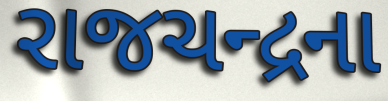
રાજચન્દ્રના